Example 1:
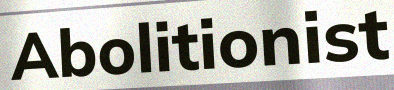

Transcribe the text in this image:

Abolitionist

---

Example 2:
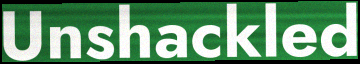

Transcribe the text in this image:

Unshackled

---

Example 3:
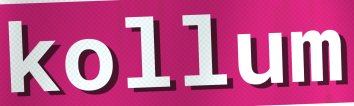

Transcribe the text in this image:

kollum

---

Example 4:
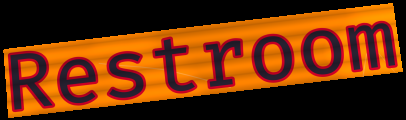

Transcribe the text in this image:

Restroom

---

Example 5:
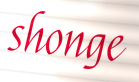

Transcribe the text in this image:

shonge